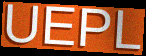
UEPL